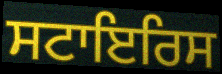
ਸਟਾਇਰਿਸ